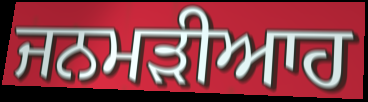
ਜਨਮੜੀਆਹ